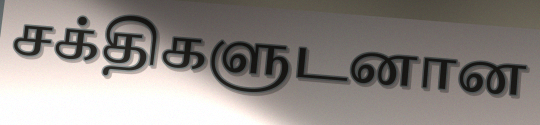
சக்திகளுடனான